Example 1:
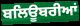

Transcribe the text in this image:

ਬਲਿਊਬਰੀਆਂ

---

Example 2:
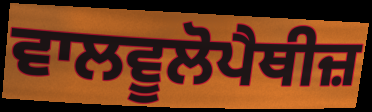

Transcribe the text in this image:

ਵਾਲਵੂਲੋਪੈਥੀਜ਼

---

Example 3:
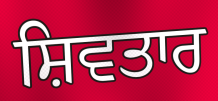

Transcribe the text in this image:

ਸ਼ਿਵਤਾਰ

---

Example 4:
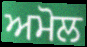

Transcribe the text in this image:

ਅਮੋਲ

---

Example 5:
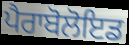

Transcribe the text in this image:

ਪੈਰਾਬੋਲੋਇਡ